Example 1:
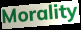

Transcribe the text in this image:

Morality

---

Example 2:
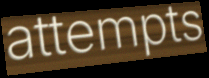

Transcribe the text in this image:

attempts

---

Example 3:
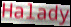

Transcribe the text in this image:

Halady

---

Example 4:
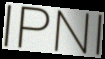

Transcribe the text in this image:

IPNI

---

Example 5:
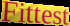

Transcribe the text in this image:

Fittest